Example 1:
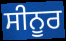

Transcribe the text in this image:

ਸੀਨੂਰ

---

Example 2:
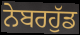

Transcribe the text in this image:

ਨੇਬਰਹੁੱਡ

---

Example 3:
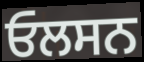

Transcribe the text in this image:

ਓਲਸਨ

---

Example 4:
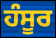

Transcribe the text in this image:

ਹੰਸੂਰ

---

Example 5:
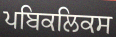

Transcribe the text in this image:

ਪਬਿਕਲਿਕਸ